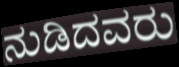
ನುಡಿದವರು